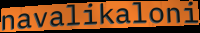
navalikaloni